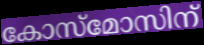
കോസ്മോസിന്